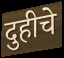
दुहीचे